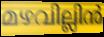
മഴവില്ലിൻ